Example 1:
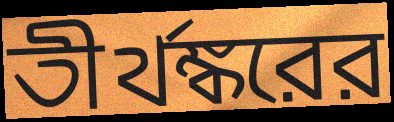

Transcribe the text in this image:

তীর্থঙ্করের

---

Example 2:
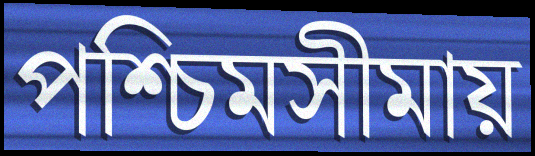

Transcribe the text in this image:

পশ্চিমসীমায়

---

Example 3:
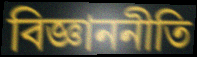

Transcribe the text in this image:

বিজ্ঞাননীতি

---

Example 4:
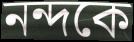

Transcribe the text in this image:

নন্দকে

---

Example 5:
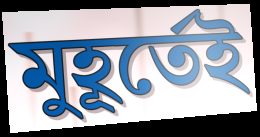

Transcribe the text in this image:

মুহূর্তেই